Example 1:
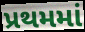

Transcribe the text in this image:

પ્રથમમાં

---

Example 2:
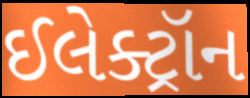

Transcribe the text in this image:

ઈલેક્ટ્રૉન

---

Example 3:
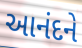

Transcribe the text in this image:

આનંદને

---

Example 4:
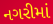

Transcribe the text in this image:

નગરીમાં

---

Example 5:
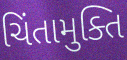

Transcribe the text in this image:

ચિંતામુક્તિ